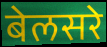
बेलसरे